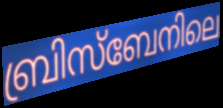
ബ്രിസ്ബേനിലെ